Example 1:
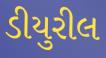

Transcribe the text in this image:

ડીયુરીલ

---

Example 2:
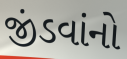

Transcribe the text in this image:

જીંડવાંનો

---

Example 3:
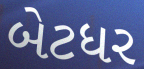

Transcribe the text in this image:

બેટધર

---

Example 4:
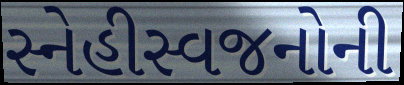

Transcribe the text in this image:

સ્નેહીસ્વજનોની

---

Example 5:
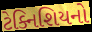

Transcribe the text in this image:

ટેક્નિશિયનો